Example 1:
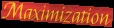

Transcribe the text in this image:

Maximization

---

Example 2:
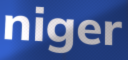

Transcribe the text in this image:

niger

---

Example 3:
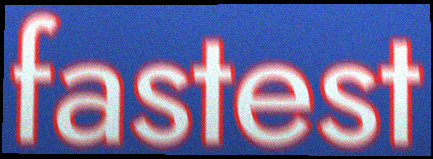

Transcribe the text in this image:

fastest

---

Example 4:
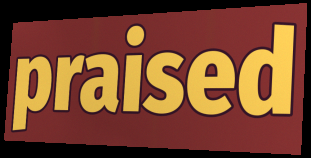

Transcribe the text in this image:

praised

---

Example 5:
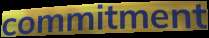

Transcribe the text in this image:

commitment